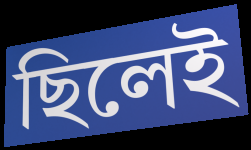
ছিলেই